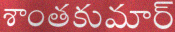
శాంతకుమార్